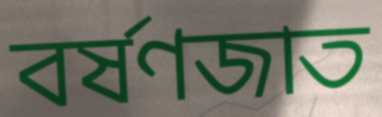
বর্ষণজাত